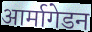
आर्मागेडन